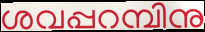
ശവപ്പറമ്പിനു